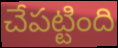
చేపట్టింది